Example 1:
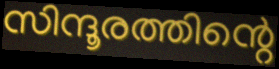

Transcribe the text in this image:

സിന്ദൂരത്തിന്റെ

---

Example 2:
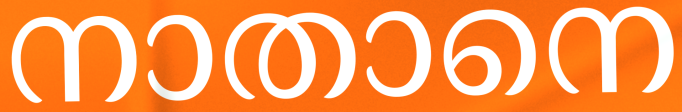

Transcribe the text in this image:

നാതാനെ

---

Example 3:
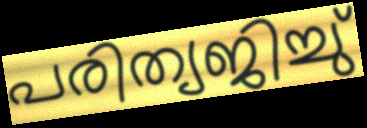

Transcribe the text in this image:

പരിത്യജിച്ചു്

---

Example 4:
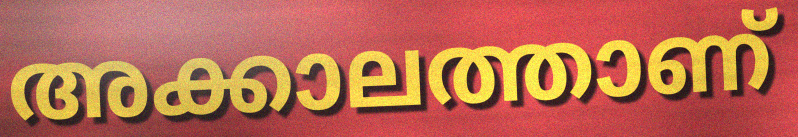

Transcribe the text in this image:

അക്കാലത്താണ്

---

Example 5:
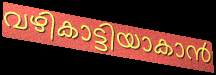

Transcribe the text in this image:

വഴികാട്ടിയാകാൻ